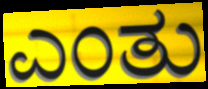
ಎಂತು